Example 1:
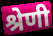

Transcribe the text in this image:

श्रेणी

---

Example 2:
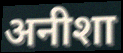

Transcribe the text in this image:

अनीशा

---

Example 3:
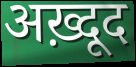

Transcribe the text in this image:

अख़्दूद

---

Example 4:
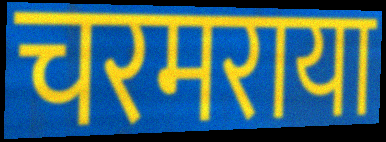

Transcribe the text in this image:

चरमराया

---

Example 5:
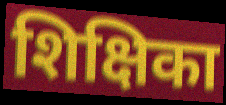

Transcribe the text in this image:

शिक्षिका